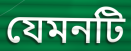
যেমনটি